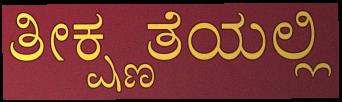
ತೀಕ್ಷ್ಣತೆಯಲ್ಲಿ